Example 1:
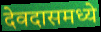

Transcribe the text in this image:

देवदासमध्ये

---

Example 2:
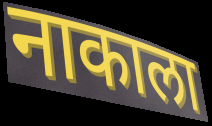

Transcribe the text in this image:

नाकाला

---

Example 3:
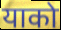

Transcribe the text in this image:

याको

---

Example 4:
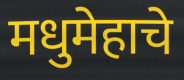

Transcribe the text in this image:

मधुमेहाचे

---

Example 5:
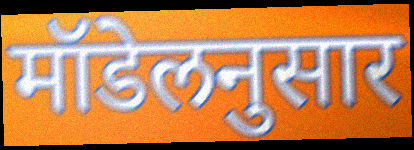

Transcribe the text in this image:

मॉडेलनुसार